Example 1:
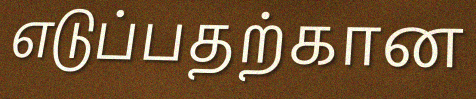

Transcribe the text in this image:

எடுப்பதற்கான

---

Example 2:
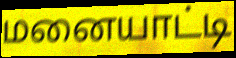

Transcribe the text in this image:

மனையாட்டி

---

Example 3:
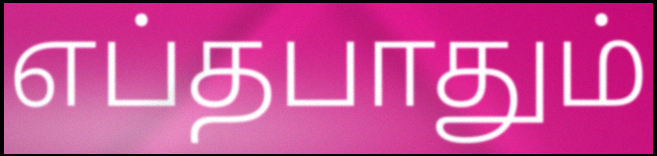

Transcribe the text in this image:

எப்தபாதும்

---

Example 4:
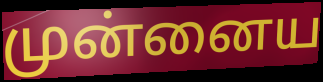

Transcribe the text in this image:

முன்னைய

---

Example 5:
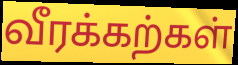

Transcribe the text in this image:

வீரக்கற்கள்